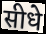
सीधे